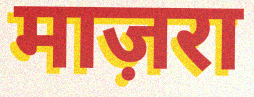
माज़रा